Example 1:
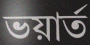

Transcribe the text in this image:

ভয়ার্ত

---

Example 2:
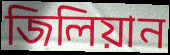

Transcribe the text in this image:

জিলিয়ান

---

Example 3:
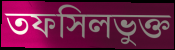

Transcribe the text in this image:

তফসিলভুক্ত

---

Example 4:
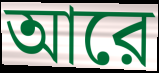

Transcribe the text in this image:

আরে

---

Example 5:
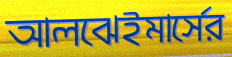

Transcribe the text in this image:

আলঝেইমার্সের